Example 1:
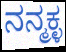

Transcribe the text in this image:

ನನ್ಮಕ್ಳ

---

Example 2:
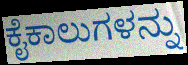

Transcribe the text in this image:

ಕೈಕಾಲುಗಳನ್ನು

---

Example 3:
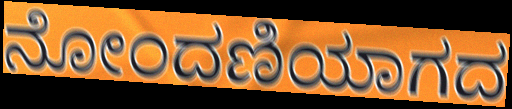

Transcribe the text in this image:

ನೋಂದಣಿಯಾಗದ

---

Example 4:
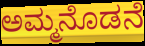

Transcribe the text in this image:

ಅಮ್ಮನೊಡನೆ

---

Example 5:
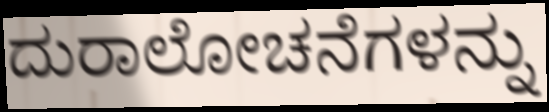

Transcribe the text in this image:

ದುರಾಲೋಚನೆಗಳನ್ನು